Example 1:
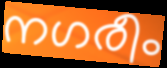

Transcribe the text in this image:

നഗരീം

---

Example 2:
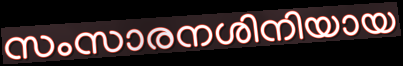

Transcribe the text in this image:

സംസാരനശിനിയായ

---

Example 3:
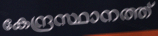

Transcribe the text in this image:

കേന്ദ്രസ്ഥാനത്ത്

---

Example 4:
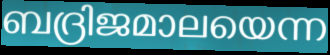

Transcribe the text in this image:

ബദ്രിജമാലയെന്ന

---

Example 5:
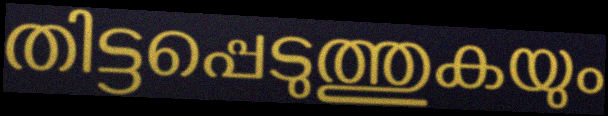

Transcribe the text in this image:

തിട്ടപ്പെടുത്തുകയും